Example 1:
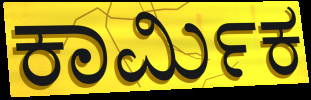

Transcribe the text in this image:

ಕಾರ್ಮಿಕ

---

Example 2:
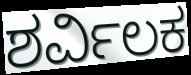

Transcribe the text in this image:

ಶರ್ವಿಲಕ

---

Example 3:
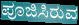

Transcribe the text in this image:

ಪೂಜಿಸಿರುವ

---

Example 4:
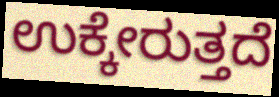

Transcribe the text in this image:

ಉಕ್ಕೇರುತ್ತದೆ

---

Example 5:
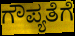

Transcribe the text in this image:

ಗೌಪ್ಯತೆಗೆ